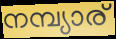
നമ്പ്യാര്